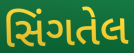
સિંગતેલ